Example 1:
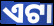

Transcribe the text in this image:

ଏଟା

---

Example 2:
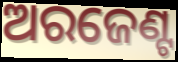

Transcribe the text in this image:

ଅରଜେଣ୍ଟ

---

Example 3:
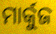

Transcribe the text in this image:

ମାର୍କୁଜ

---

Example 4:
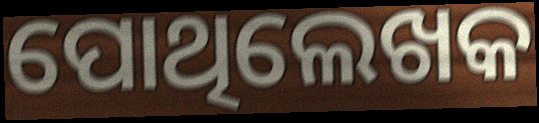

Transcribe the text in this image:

ପୋଥିଲେଖକ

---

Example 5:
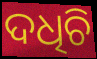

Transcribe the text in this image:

ଦଧିଚି